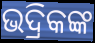
ଭଦ୍ରିକଙ୍କ